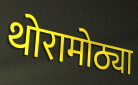
थोरामोठ्या